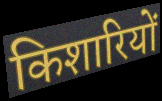
किशारियों